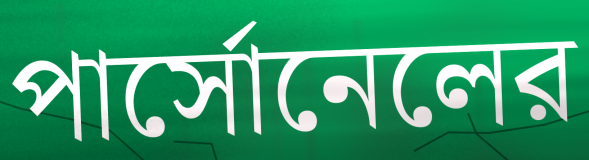
পার্সোনেলের